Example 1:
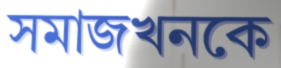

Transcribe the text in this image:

সমাজখনকে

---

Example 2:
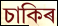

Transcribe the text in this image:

চাকিৰ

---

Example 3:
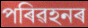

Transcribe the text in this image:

পৰিৱহনৰ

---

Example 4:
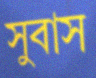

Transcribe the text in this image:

সুবাস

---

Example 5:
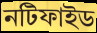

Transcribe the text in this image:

নটিফাইড